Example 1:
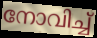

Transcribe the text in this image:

നോവിച്ച്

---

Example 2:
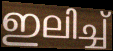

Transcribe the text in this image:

ഇലിച്ച്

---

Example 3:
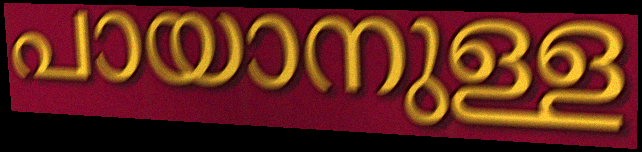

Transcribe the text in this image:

പായാനുള്ള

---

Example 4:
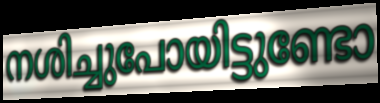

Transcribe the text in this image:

നശിച്ചുപോയിട്ടുണ്ടോ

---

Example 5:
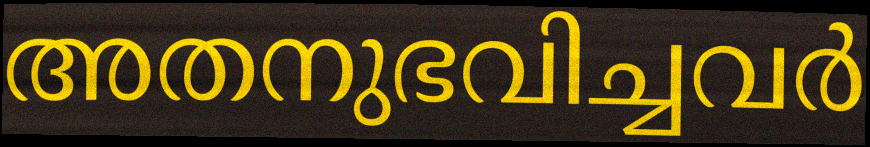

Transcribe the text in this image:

അതനുഭവിച്ചവർ